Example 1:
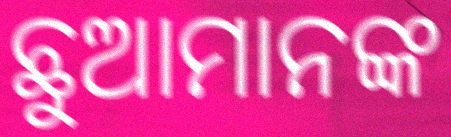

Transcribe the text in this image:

ଛୁଆମାନଙ୍କ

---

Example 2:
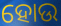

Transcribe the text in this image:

ହୋଉ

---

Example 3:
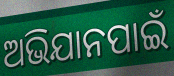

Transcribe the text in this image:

ଅଭିଯାନପାଇଁ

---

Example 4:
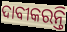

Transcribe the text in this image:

ଦାବୀକରନ୍ତି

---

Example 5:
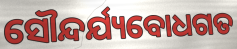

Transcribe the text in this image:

ସୌନ୍ଦର୍ଯ୍ୟବୋଧଗତ